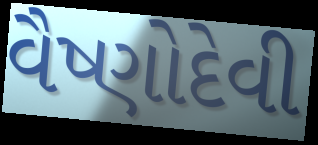
વૈષ્ણોદેવી